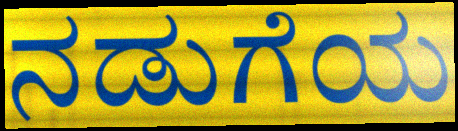
ನಡುಗೆಯ